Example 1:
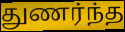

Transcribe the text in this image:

துணர்ந்த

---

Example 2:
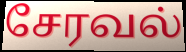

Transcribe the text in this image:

சேரவல்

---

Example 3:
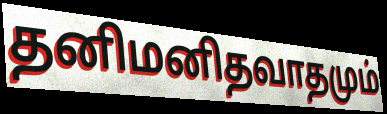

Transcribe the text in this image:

தனிமனிதவாதமும்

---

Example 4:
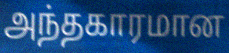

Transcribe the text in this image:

அந்தகாரமான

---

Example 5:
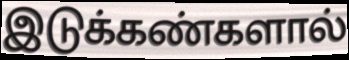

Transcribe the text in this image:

இடுக்கண்களால்